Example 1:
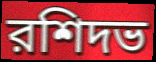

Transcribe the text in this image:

রশিদভ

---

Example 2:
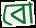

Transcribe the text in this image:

বো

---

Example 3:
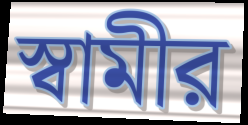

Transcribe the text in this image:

স্বামীর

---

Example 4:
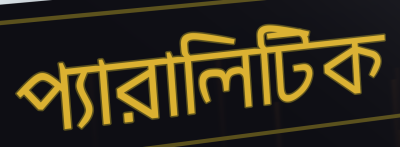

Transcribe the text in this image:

প্যারালিটিক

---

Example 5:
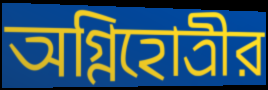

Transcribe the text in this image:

অগ্নিহোত্রীর